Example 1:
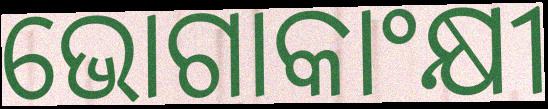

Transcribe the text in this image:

ଭୋଗାକାଂକ୍ଷୀ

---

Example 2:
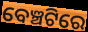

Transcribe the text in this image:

ବେଞ୍ଚଟିରେ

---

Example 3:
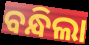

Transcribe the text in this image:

ବନ୍ଧିଲା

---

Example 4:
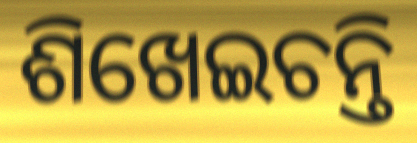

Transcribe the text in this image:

ଶିଖେଇଚନ୍ତି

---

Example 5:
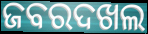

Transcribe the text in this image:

ଜବରଦଖଲ